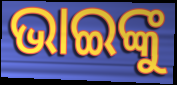
ଭାଇଙ୍କୁ